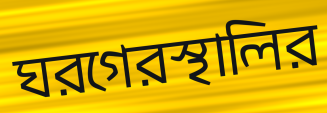
ঘরগেরস্থালির